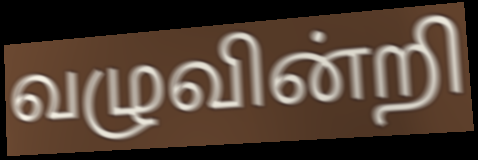
வழுவின்றி